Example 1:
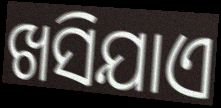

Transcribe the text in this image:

ଖସିଯାଏ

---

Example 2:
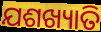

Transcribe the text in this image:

ଯଶଖ୍ୟାତି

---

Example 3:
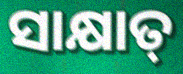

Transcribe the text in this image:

ସାକ୍ଷାତ୍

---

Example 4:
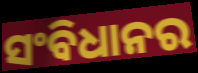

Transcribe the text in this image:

ସଂବିଧାନର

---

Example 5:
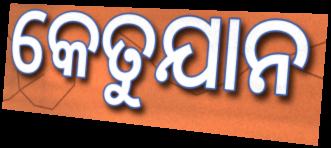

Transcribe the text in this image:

କେତୁଯାନ